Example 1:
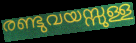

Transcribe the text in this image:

രണ്ടുവയസ്സുള്ള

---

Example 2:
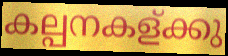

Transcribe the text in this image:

കല്പനകള്ക്കു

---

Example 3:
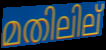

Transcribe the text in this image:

മതിലില്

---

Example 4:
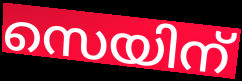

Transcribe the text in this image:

സെയിന്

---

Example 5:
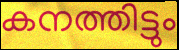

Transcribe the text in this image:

കനത്തിട്ടും